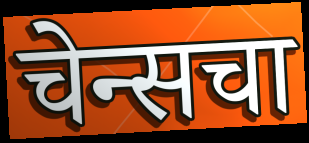
चेन्सचा